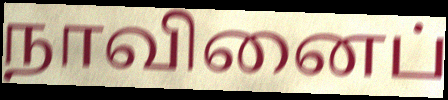
நாவினைப்